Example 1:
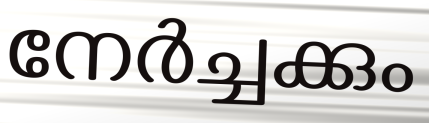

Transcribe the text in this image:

നേർച്ചക്കും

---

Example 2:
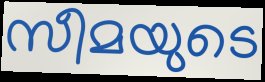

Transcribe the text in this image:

സീമയുടെ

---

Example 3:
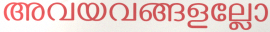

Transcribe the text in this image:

അവയവങ്ങളല്ലോ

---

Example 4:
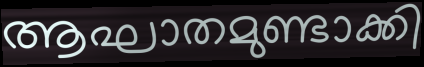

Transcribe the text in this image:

ആഘാതമുണ്ടാക്കി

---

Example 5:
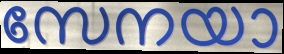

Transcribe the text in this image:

സേനയാ